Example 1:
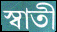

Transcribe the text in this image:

স্বাতী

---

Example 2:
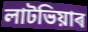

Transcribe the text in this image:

লাটভিয়াৰ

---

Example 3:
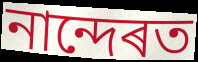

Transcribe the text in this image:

নান্দেৰত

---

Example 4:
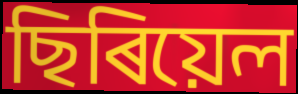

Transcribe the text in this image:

ছিৰিয়েল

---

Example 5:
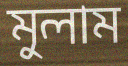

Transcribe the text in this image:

মুলাম